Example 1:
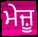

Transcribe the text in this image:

ਮੇਜ਼ੂ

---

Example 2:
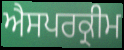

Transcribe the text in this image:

ਐਸਪਰਕ੍ਰੀਮ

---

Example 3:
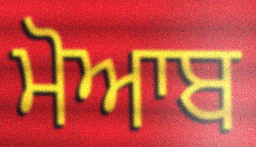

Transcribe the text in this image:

ਮੋਆਬ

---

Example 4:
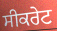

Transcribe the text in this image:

ਸੀਕਰੇਟ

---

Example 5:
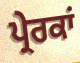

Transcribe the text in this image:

ਪ੍ਰੇਰਕਾਂ